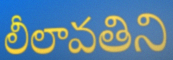
లీలావతిని